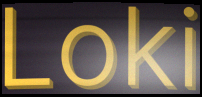
Loki